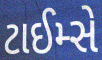
ટાઈમ્સે